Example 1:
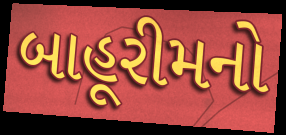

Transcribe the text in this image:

બાહૂરીમનો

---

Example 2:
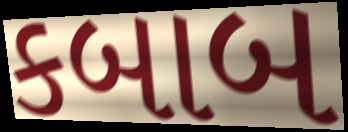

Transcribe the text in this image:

કબાબ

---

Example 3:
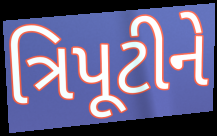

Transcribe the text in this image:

ત્રિપૂટીને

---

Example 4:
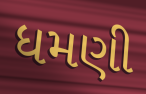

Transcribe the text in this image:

ધમણી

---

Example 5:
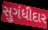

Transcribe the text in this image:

સુગંધીદાર